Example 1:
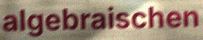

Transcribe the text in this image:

algebraischen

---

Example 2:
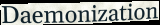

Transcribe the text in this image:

Daemonization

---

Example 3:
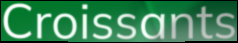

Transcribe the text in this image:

Croissants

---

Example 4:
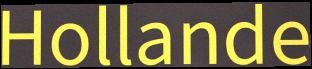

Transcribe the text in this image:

Hollande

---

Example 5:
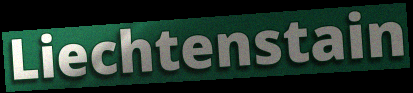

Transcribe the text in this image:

Liechtenstain